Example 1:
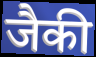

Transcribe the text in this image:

जैकी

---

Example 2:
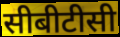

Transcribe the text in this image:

सीबीटीसी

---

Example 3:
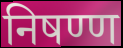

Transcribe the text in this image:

निषण्ण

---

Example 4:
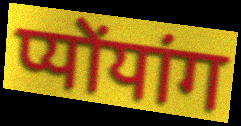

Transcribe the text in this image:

प्योंयांग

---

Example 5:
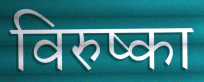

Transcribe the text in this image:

विरुष्का